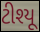
ટીશ્યૂ